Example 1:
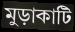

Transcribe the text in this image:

মুড়াকাটি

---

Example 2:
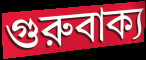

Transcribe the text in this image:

গুরুবাক্য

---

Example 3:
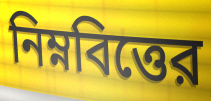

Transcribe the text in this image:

নিম্নবিত্তের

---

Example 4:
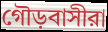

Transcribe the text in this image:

গৌড়বাসীরা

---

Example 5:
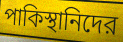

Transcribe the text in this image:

পাকিস্থানিদের